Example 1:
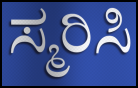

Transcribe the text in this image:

ಸ್ಮರಿಸಿ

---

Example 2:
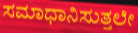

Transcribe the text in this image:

ಸಮಾಧಾನಿಸುತ್ತಲೇ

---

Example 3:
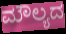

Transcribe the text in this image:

ಮೌಲ್ಯದ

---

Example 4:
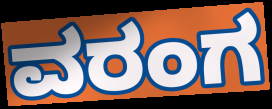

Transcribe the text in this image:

ವರಂಗ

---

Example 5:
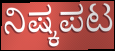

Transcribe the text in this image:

ನಿಷ್ಕಪಟ